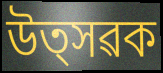
উত্সৱক